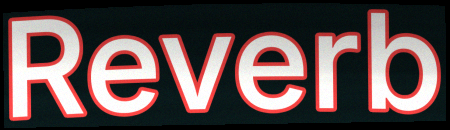
Reverb